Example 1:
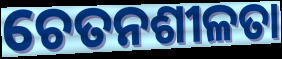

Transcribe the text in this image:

ଚେତନଶୀଳତା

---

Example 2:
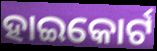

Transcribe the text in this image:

ହାଇକୋର୍ଟ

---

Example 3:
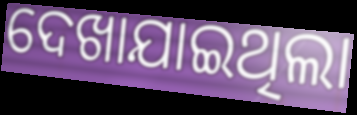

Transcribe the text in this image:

ଦେଖାଯାଇଥିଲା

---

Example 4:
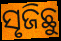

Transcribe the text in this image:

ସୃଜିଛୁ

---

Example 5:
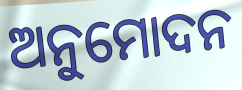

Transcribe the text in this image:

ଅନୁମୋଦନ